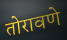
तोरावणे